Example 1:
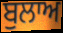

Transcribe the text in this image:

ਬੁਲਾਅ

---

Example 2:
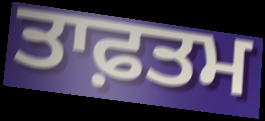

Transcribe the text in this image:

ਤਾਫ਼ਤਮ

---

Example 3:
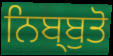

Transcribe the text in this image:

ਨਿਬ੍ਬੁਤੋ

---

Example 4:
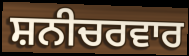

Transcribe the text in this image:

ਸ਼ਨੀਚਰਵਾਰ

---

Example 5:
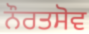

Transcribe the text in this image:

ਨੌਰਤਸੋਵ